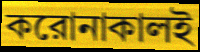
করোনাকালই